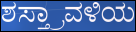
ಶಸ್ತ್ರಾವಳಿಯ